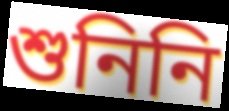
শুনিনি